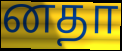
னதா